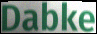
Dabke